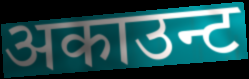
अकाउन्ट